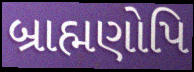
બ્રાહ્મણોપિ